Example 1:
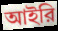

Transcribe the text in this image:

আইরি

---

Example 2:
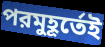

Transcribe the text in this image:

পরমুহূর্তেই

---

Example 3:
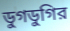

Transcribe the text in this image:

ডুগডুগির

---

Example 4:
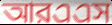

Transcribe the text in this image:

আরএএস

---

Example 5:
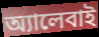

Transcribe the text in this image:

অ্যালেবাই